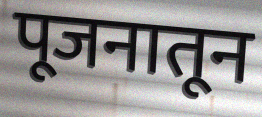
पूजनातून